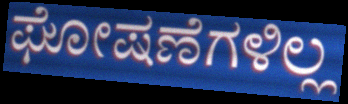
ಘೋಷಣೆಗಳಿಲ್ಲ